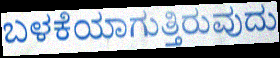
ಬಳಕೆಯಾಗುತ್ತಿರುವುದು